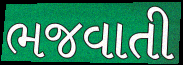
ભજવાતી